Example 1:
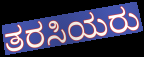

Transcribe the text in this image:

ತರಸಿಯರು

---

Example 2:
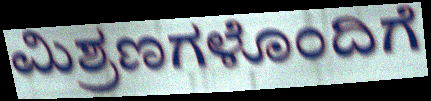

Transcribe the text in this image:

ಮಿಶ್ರಣಗಳೊಂದಿಗೆ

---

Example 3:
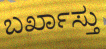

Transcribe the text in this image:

ಬರ್ಖಾಸ್ತು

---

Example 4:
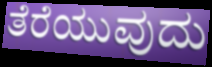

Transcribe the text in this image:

ತೆರೆಯುವುದು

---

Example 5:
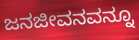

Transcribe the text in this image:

ಜನಜೀವನವನ್ನೂ